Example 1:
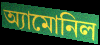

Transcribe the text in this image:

অ্যামোনিল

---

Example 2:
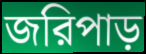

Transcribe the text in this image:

জরিপাড়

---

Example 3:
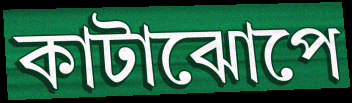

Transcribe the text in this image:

কাটাঝোপে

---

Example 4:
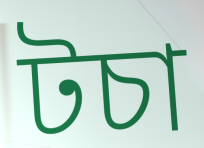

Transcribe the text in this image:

টচা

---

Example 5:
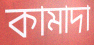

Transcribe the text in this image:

কামাদা